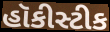
હૉકીસ્ટીક